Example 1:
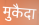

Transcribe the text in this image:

मुकैदा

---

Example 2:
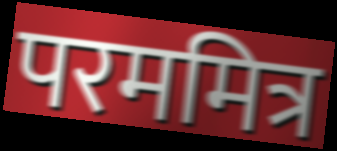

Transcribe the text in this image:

परममित्र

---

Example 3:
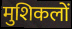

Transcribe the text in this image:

मुशिकलों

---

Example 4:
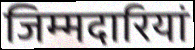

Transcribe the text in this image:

जिम्मदारियां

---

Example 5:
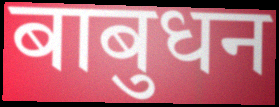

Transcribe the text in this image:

बाबुधन